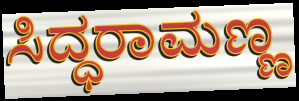
ಸಿದ್ಧರಾಮಣ್ಣ